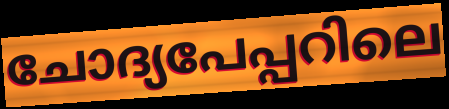
ചോദ്യപേപ്പറിലെ